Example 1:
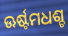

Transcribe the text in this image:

ଊର୍ଷ୍ଟମଧଶ୍ଚ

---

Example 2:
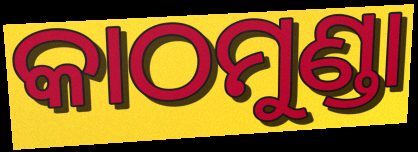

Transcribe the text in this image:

କାଠମୁଣ୍ଡା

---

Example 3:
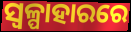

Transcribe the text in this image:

ସ୍ୱଳ୍ପାହାରରେ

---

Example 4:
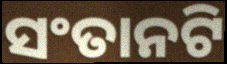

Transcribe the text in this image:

ସଂତାନଟି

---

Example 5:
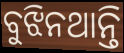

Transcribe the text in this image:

ବୁଝିନଥାନ୍ତି